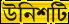
উনিশটি